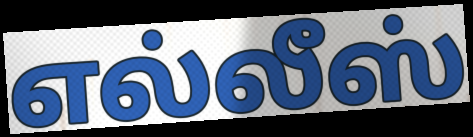
எல்லீஸ்